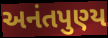
અનંતપુણ્ય